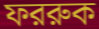
ফররুক